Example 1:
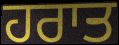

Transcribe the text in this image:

ਹਰਾਤ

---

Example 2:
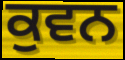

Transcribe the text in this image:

ਕੁਵਨ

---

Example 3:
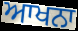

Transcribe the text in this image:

ਆਖਨਾ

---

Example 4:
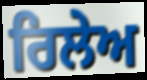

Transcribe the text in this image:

ਰਿਲੇਅ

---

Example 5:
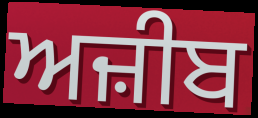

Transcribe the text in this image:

ਅਜ਼ੀਬ